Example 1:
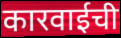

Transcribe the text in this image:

कारवाईची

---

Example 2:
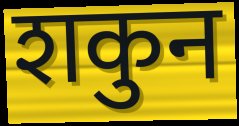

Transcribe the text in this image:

शकुन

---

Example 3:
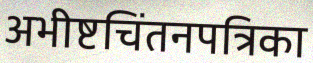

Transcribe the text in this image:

अभीष्टचिंतनपत्रिका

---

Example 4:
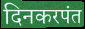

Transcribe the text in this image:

दिनकरपंत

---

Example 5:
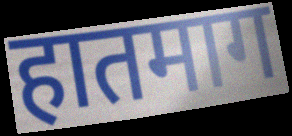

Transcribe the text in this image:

हातमाग